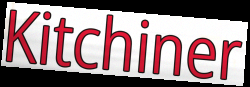
Kitchiner